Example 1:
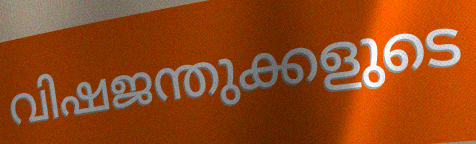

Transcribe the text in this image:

വിഷജന്തുക്കളുടെ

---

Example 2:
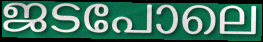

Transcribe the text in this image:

ജടപോലെ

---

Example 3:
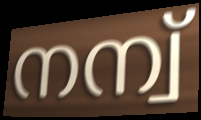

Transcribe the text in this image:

നന്വ്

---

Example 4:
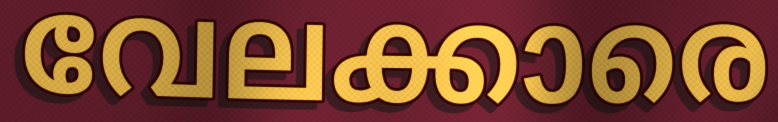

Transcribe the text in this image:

വേലക്കാരെ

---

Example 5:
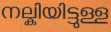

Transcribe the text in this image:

നല്കിയിട്ടുള്ള